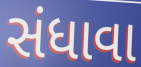
સંધાવા